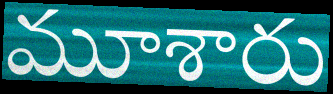
మూశారు